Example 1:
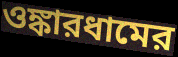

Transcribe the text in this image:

ওঙ্কারধামের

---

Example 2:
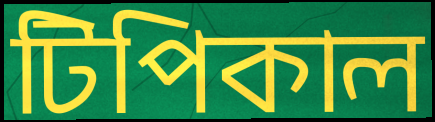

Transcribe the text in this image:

টিপিকাল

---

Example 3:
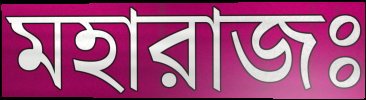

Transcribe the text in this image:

মহারাজঃ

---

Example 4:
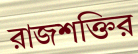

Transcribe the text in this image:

রাজশক্তির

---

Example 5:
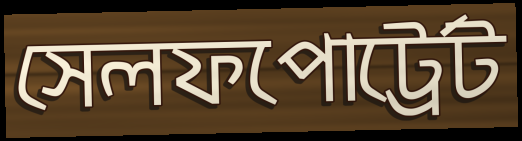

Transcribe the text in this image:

সেলফপোর্ট্রেট